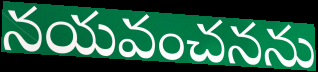
నయవంచనను